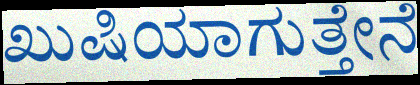
ಖುಷಿಯಾಗುತ್ತೇನೆ